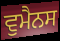
ਵੁਮੈਨਸ